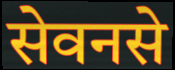
सेवनसे